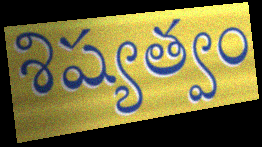
శిష్యత్వం